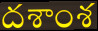
దశాంశ